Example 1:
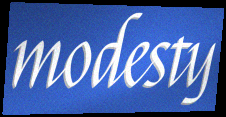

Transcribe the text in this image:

modesty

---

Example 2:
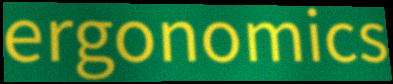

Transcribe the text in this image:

ergonomics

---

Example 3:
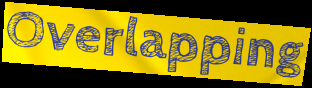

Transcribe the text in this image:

Overlapping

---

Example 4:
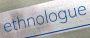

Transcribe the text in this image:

ethnologue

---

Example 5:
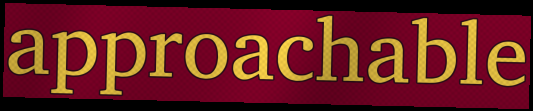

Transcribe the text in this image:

approachable